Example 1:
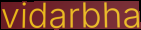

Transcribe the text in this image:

vidarbha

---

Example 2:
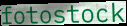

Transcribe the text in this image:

fotostock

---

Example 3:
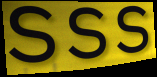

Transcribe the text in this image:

sss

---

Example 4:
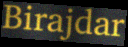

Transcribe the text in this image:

Birajdar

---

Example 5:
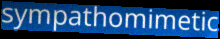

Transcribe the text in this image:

sympathomimetic